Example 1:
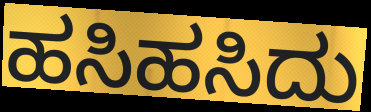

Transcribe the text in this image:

ಹಸಿಹಸಿದು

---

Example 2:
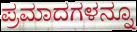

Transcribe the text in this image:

ಪ್ರಮಾದಗಳನ್ನೂ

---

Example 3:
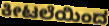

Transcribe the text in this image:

ಕೀಟಲೆಯಿಂದ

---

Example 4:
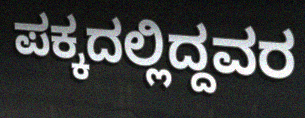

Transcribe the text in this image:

ಪಕ್ಕದಲ್ಲಿದ್ದವರ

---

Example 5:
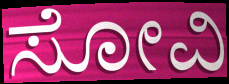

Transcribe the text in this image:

ಸೋವಿ